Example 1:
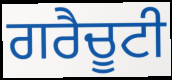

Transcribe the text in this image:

ਗਰੈਚੂਟੀ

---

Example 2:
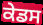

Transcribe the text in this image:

ਕੇਡਸ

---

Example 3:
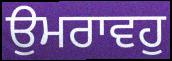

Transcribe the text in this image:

ਉਮਰਾਵਹੁ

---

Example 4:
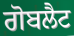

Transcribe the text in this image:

ਗੋਬਲੈਟ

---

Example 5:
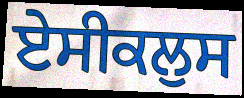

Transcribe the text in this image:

ਏਸੀਕਲੁਸ